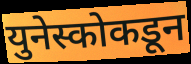
युनेस्कोकडून